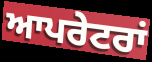
ਆਪਰੇਟਰਾਂ